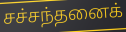
சச்சந்தனைக்